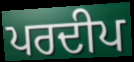
ਪਰਦੀਪ